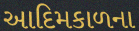
આદિમકાળના